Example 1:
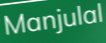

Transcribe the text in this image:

Manjulal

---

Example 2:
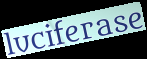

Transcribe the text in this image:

luciferase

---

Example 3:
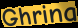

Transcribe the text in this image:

Ghrina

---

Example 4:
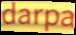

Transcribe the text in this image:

darpa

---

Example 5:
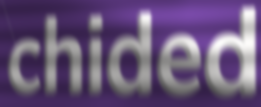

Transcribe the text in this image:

chided